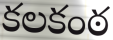
కలకంఠ